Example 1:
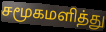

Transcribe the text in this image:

சமூகமளித்து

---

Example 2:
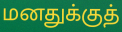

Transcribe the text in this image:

மனதுக்குத்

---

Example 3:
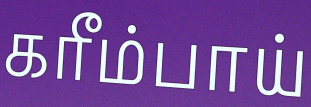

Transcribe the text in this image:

கரீம்பாய்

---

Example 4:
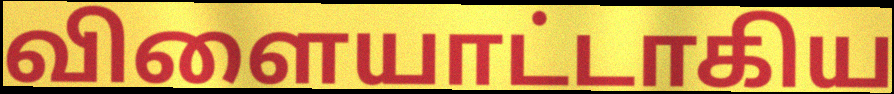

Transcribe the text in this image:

விளையாட்டாகிய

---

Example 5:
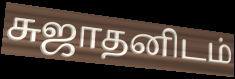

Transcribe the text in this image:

சுஜாதனிடம்